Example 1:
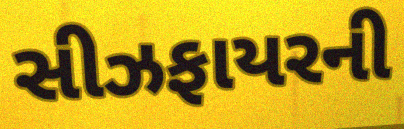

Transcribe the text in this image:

સીઝફાયરની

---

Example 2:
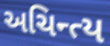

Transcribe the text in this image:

અચિન્ત્ય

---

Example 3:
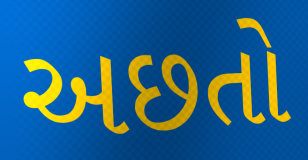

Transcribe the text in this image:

અછતો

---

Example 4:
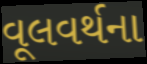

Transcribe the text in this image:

વૂલવર્થના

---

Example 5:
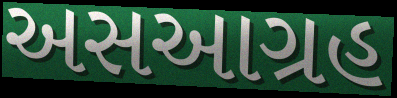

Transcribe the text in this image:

અસઆગ્રહ